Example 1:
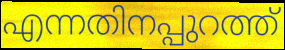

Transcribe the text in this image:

എന്നതിനപ്പുറത്ത്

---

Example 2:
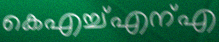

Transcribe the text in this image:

കെഎച്ച്എന്എ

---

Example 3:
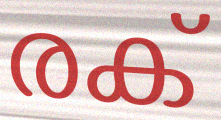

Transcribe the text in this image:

രക്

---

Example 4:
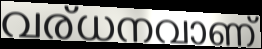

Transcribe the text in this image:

വര്ധനവാണ്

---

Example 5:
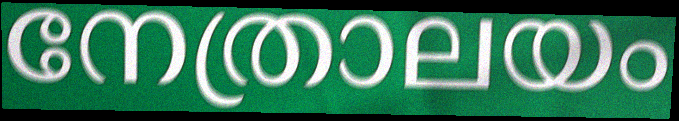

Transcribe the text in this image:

നേത്രാലയം